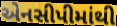
એનસીપીમાંથી